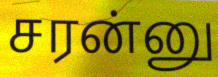
சரன்னு